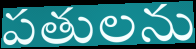
పతులను